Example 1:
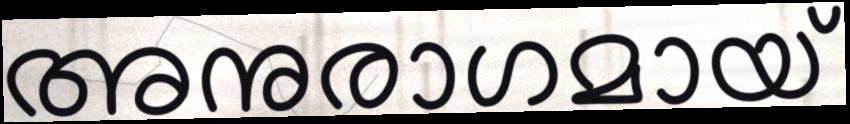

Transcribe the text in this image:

അനുരാഗമായ്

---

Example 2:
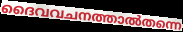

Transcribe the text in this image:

ദൈവവചനത്താൽതന്നെ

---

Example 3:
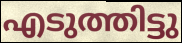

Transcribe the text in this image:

എടുത്തിട്ടു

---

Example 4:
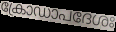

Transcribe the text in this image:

ക്രോഡാപദേശഃ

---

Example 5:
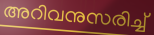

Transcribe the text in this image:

അറിവനുസരിച്ച്